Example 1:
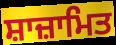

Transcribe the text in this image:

ਸ਼ਾਜ਼ਾਮਿਤ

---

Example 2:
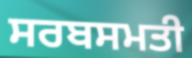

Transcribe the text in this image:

ਸਰਬਸਮਤੀ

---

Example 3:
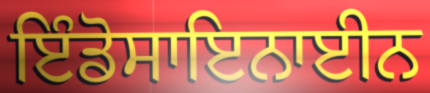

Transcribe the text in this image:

ਇੰਡੋਸਾਇਨਾਈਨ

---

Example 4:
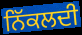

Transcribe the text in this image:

ਨਿੱਕਲਦੀ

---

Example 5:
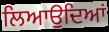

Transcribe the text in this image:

ਲਿਆਉਦਿਆਂ